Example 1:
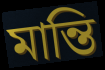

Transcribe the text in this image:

মান্তি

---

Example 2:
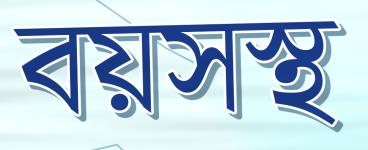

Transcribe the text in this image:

বয়সস্থ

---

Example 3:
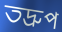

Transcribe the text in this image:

তদ্ৰুপ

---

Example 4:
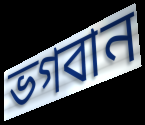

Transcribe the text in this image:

ভগবান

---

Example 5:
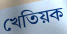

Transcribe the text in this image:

খেতিয়ক